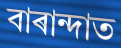
বাৰান্দাত